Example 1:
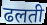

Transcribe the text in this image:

ढलती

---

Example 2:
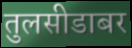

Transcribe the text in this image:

तुलसीडाबर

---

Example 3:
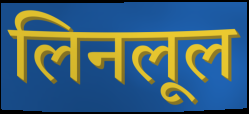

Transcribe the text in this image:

लिनलूल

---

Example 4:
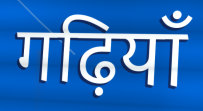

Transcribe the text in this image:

गढ़ियाँ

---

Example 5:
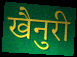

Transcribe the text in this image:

खैनुरी